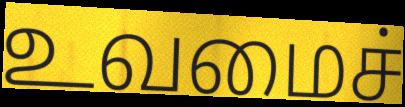
உவமைச்